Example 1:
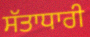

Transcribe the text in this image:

ਸੱਤਾਧਾਰੀ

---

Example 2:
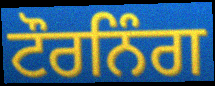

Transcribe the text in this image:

ਟੌਰਨਿੰਗ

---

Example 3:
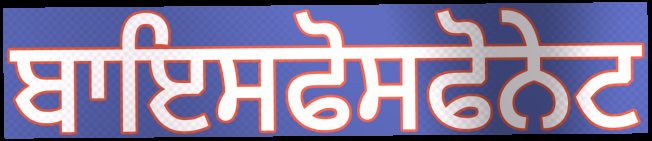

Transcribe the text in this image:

ਬਾਇਸਫੋਸਫੋਨੇਟ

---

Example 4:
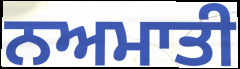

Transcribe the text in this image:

ਨਅਮਾਤੀ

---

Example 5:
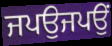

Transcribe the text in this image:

ਜਪਉਜਪਉਂ